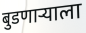
बुडणाऱ्याला